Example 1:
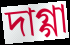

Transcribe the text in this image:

দাগ্গা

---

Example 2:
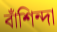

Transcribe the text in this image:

বাঁশিন্দা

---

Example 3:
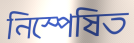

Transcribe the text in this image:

নিস্পেষিত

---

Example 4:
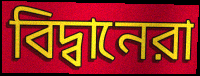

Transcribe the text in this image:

বিদ্বানেরা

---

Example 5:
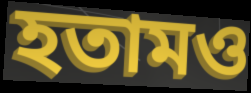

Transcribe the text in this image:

হতামও